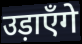
उड़ाएँगे